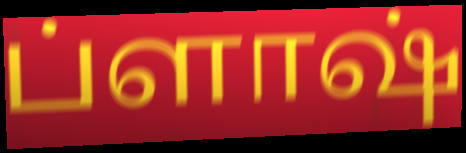
ப்ளாஷ்